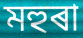
মহুৰা